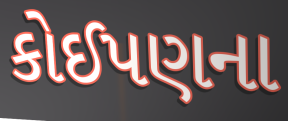
કોઈપણના